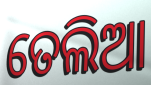
ତେଲିଆ